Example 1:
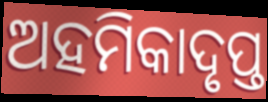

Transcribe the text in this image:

ଅହମିକାଦୃପ୍ତ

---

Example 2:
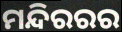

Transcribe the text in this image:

ମନ୍ଦିରରର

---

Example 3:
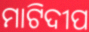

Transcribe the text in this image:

ମାଟିଦୀପ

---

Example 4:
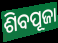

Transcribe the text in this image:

ଶିବପୂଜା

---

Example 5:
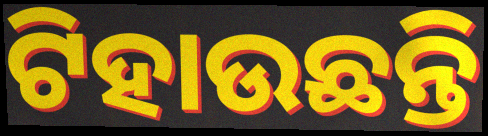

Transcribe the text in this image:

ଟିହାଉଛନ୍ତି